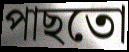
পাছতো